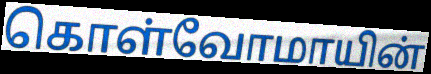
கொள்வோமாயின்